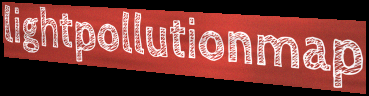
lightpollutionmap